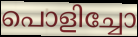
പൊളിച്ചോ